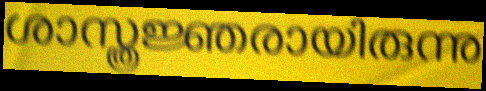
ശാസ്ത്രജ്ഞരായിരുന്നു